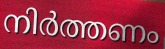
നിർത്തണം